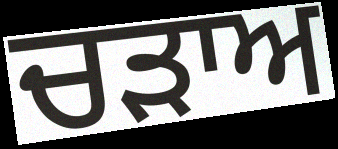
ਚੜਾਅ